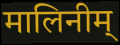
मालिनीम्